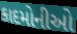
કાદમોનીઓ